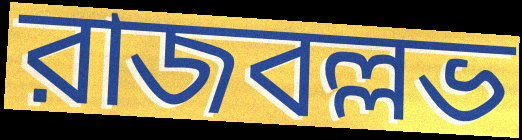
রাজবল্লভ